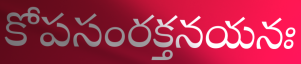
కోపసంరక్తనయనః